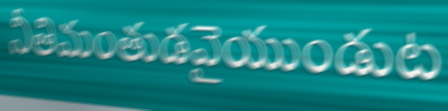
నీతిమంతుడవైయుండుట